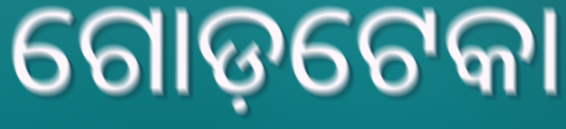
ଗୋଡ଼ଟେକା